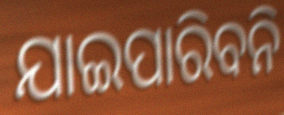
ଯାଇପାରିବନି